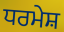
ਧਰਮੇਸ਼